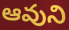
ఆవుని